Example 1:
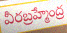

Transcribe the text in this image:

వీరబ్రహ్మేంద్ర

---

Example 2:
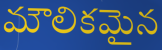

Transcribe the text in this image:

మౌలికమైన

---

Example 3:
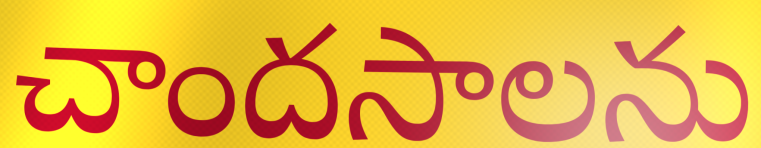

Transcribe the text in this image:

చాందసాలను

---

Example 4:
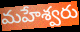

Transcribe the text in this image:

మహేశ్వరు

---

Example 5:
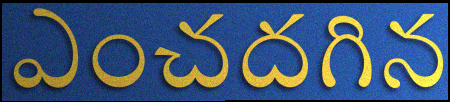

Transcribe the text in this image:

ఎంచదగిన